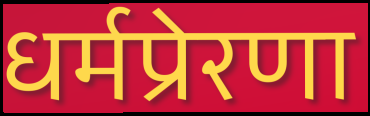
धर्मप्रेरणा